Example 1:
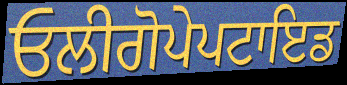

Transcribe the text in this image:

ਓਲੀਗੋਪੇਪਟਾਇਡ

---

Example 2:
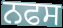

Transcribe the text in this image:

ਨਫਸ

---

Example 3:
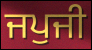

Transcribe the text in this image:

ਜਪੁਜੀ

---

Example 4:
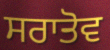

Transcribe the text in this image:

ਸਰਾਤੋਵ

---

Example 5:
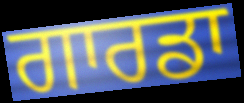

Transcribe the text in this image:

ਗਾਰਡਾ